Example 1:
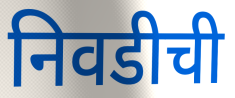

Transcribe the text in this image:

निवडीची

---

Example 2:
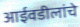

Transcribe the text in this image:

आईवडीलांचे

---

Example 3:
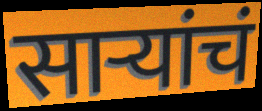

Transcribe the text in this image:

साऱ्यांचं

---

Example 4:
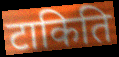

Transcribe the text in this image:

टाकिति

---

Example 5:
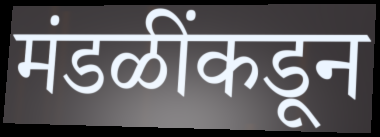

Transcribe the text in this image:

मंडळींकडून